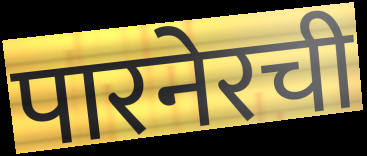
पारनेरची